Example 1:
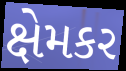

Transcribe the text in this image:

ક્ષેમકર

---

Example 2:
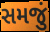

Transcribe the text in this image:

સમજું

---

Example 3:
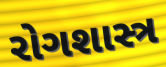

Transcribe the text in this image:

રોગશાસ્ત્ર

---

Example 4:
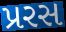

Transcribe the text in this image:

પ્રરસ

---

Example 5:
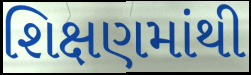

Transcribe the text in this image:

શિક્ષણમાંથી